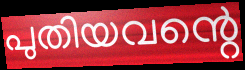
പുതിയവന്റെ